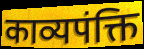
काव्यपंक्ति